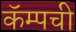
कॅम्पची